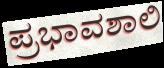
ಪ್ರಭಾವಶಾಲಿ